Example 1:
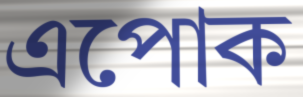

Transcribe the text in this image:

এপোক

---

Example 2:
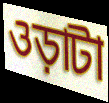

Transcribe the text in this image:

ওড়াটা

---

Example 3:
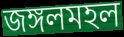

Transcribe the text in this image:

জঙ্গলমহল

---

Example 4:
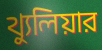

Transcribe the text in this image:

থ্যুলিয়ার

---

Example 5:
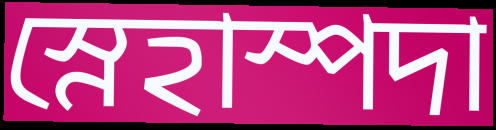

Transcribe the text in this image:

স্নেহাস্পদা